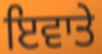
ਇਵਾਤੇ